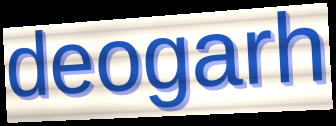
deogarh